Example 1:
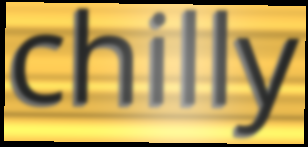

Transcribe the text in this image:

chilly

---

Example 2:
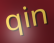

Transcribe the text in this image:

qin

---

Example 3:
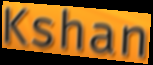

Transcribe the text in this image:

Kshan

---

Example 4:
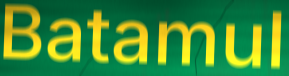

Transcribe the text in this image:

Batamul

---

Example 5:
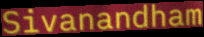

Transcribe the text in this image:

Sivanandham